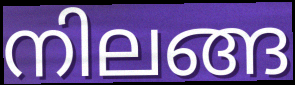
നിലങ്ങ